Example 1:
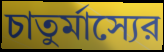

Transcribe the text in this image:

চাতুর্মাস্যের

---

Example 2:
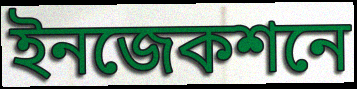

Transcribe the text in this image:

ইনজেকশনে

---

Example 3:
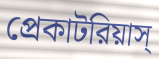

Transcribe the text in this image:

প্রেকাটরিয়াস্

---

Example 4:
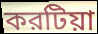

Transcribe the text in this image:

করটিয়া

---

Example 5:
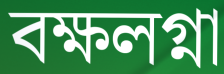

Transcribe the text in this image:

বক্ষলগ্না